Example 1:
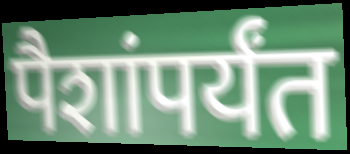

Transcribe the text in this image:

पैशांपर्यंत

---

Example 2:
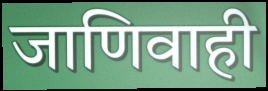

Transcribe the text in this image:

जाणिवाही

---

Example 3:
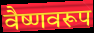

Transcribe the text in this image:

वैष्णवरूप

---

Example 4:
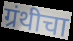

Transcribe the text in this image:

ग्रंथीचा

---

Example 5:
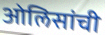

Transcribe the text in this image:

ओलिसांची